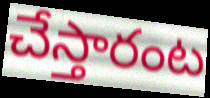
చేస్తారంట